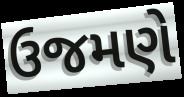
ઉજમણે